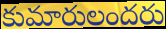
కుమారులందరు